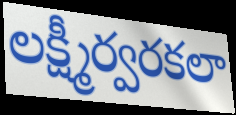
లక్ష్మీర్వరకలా